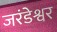
जरंडेश्वर